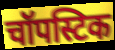
चॉपस्टिक